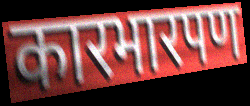
कारभारपण